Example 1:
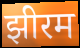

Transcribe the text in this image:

झीरम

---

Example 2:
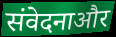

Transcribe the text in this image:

संवेदनाऔर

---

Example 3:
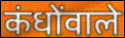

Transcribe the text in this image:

कंधोंवाले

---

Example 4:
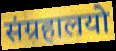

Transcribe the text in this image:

संग्रहालयो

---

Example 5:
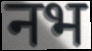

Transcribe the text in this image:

नभ